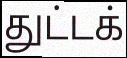
துட்டக்